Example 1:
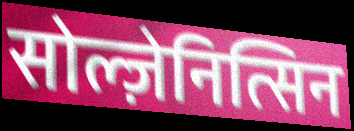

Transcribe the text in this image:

सोल्ज़ेनित्सिन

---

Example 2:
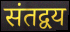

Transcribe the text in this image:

संतद्वय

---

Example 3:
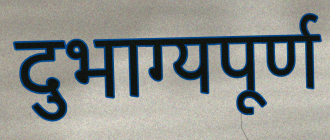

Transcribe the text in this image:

दुभाग्यपूर्ण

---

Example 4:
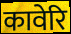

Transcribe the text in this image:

कावेरि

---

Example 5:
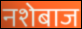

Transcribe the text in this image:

नशेबाज